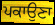
ਪਕਾਉਣਾ